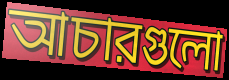
আচারগুলো